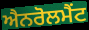
ਐਨਰੋਲਮੈਂਟ